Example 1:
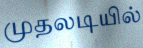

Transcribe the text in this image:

முதலடியில்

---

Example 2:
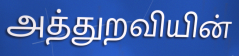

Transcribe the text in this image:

அத்துறவியின்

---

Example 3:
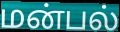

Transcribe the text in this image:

மன்பல்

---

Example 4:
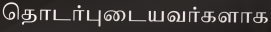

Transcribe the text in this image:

தொடர்புடையவர்களாக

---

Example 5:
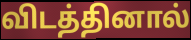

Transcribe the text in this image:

விடத்தினால்